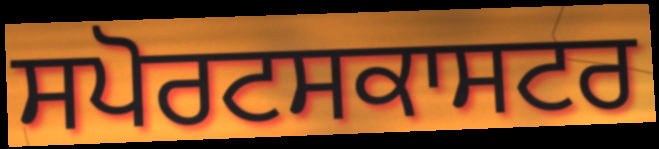
ਸਪੋਰਟਸਕਾਸਟਰ